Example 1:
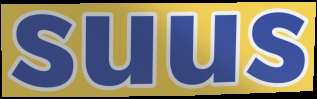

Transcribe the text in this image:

suus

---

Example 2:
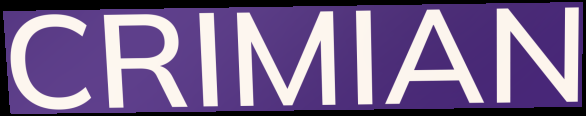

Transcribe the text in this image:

CRIMIAN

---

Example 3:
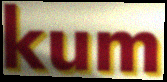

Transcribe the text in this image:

kum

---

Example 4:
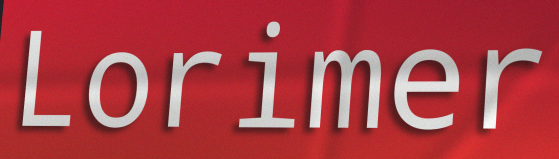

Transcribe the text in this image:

Lorimer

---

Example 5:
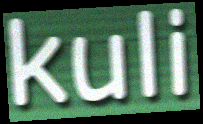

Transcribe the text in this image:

kuli